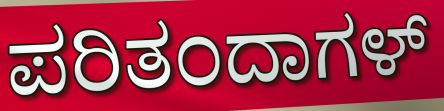
ಪರಿತಂದಾಗಳ್